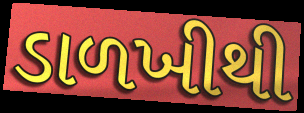
ડાળખીથી